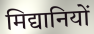
मिद्यानियों